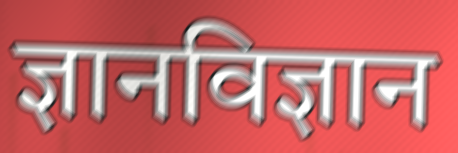
ज्ञानविज्ञान